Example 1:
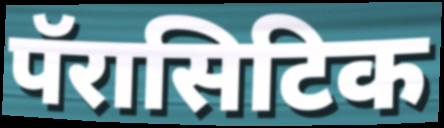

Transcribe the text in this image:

पॅरासिटिक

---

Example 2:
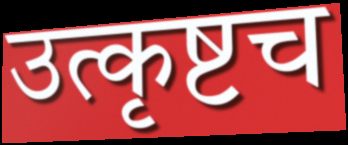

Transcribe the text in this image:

उत्कृष्टच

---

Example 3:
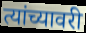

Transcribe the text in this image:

त्यांच्यावरी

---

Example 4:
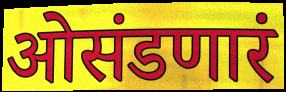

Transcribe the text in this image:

ओसंडणारं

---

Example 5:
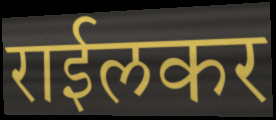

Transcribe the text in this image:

राईलकर